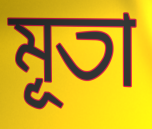
মূতা